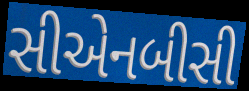
સીએનબીસી